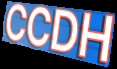
CCDH